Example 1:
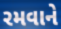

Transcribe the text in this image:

રમવાને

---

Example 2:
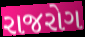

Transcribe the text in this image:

રાજરોગ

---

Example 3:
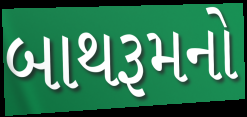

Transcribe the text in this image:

બાથરૂમનો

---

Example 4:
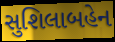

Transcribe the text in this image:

સુશિલાબહેન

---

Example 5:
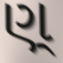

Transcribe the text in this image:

ણ્